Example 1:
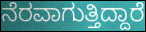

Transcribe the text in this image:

ನೆರವಾಗುತ್ತಿದ್ದಾರೆ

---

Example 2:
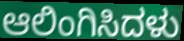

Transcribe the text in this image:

ಆಲಿಂಗಿಸಿದಳು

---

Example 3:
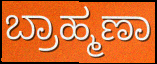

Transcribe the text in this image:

ಬ್ರಾಹ್ಮಣಾ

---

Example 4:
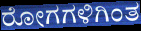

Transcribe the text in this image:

ರೋಗಗಳಿಗಿಂತ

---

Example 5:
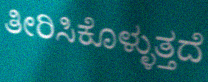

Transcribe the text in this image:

ತೀರಿಸಿಕೊಳ್ಳುತ್ತದೆ